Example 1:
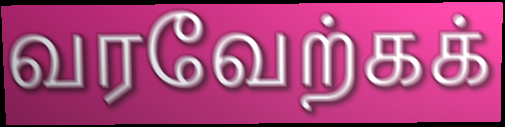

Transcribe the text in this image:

வரவேற்கக்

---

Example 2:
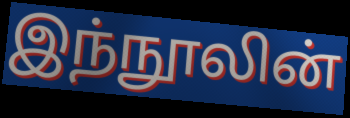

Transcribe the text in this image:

இந்நூலின்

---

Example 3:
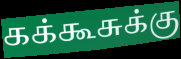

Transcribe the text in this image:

கக்கூசுக்கு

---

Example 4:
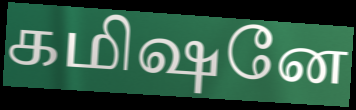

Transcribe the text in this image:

கமிஷனே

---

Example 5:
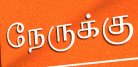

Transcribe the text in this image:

நேருக்கு